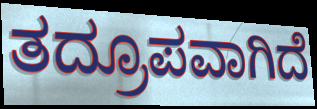
ತದ್ರೂಪವಾಗಿದೆ